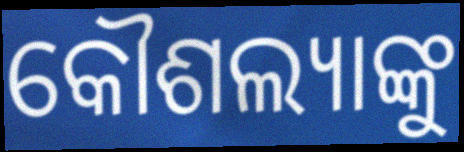
କୌଶଲ୍ୟାଙ୍କୁ